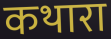
कथारा